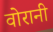
वोरानी